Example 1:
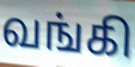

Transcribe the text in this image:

வங்கி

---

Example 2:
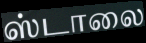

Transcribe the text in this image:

ஸ்டாலை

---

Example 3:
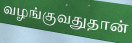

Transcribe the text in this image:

வழங்குவதுதான்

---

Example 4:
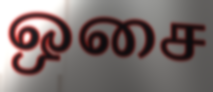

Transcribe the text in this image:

ஒசை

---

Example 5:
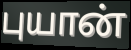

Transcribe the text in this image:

புயான்